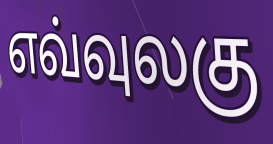
எவ்வுலகு